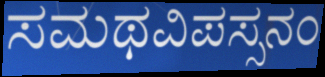
ಸಮಥವಿಪಸ್ಸನಂ